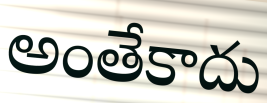
అంతేకాదు